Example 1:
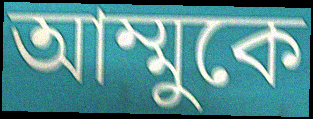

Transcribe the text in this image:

আম্মুকে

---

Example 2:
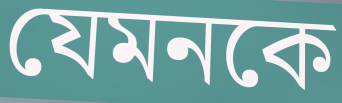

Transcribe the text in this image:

যেমনকে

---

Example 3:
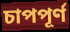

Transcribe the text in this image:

চাপপূর্ণ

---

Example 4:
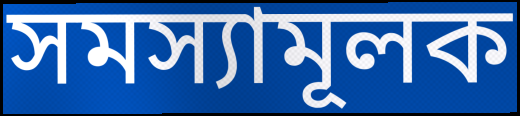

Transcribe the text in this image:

সমস্যামূলক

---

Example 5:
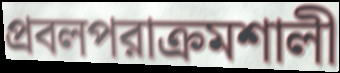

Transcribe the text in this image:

প্রবলপরাক্রমশালী